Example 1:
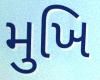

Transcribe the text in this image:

મુખિ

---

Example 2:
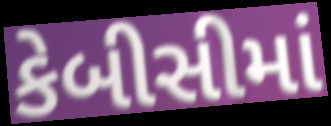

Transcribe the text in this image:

કેબીસીમાં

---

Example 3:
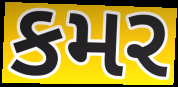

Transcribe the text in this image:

કમર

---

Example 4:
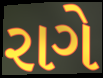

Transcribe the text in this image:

રાગે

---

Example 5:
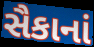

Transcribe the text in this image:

સૈકાનાં